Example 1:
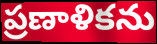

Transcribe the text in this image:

ప్రణాళికను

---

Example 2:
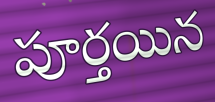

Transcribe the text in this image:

పూర్తయిన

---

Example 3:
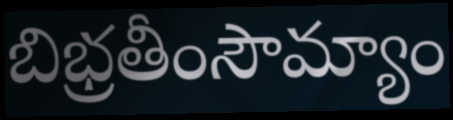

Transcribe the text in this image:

బిభ్రతీంసౌమ్యాం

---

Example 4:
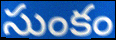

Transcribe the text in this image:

సుంకం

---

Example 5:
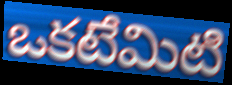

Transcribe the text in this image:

ఒకటేమిటి